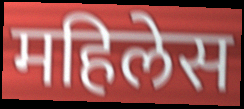
महिलेस